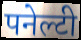
पनेल्टी